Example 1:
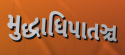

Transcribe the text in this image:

મુદ્ધાધિપાતઞ્ચ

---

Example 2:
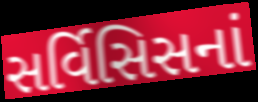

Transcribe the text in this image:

સર્વિસિસનાં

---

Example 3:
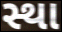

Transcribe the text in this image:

સ્થા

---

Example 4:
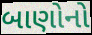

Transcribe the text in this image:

બાણોનો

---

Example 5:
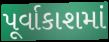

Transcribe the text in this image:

પૂર્વાકાશમાં